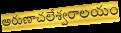
అరుణాచలేశ్వరాలయం